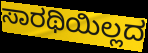
ಸಾರಥಿಯಿಲ್ಲದ